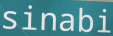
sinabi